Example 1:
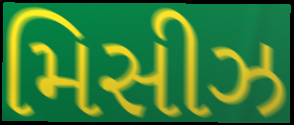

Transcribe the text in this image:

મિસીઝ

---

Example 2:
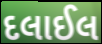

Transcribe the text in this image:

દલાઈલ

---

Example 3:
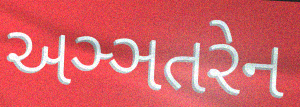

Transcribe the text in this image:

અઞ્ઞતરેન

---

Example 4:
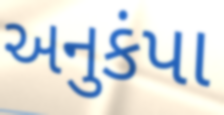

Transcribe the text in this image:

અનુકંપા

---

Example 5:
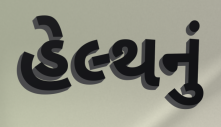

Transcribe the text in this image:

હેલ્થનું